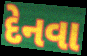
દેનવા